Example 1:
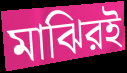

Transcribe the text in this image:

মাঝিরই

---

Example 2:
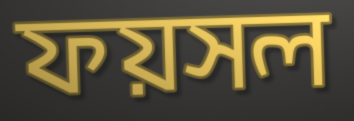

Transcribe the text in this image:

ফয়সল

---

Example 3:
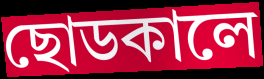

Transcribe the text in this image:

ছোডকালে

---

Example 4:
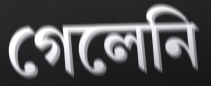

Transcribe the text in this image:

গেলেনি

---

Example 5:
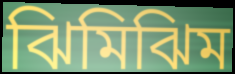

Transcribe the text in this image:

ঝিমিঝিম